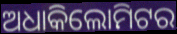
ଅଧାକିଲୋମିଟର